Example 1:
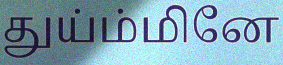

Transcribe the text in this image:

துய்ம்மினே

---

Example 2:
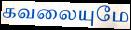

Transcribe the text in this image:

கவலையுமே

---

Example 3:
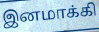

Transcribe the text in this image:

இனமாக்கி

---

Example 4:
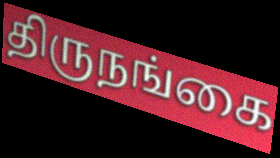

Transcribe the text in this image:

திருநங்கை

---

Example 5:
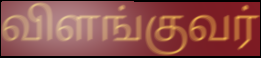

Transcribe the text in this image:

விளங்குவர்